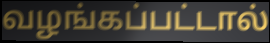
வழங்கப்பட்டால்